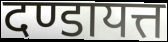
दण्डायत्त